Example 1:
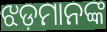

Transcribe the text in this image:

ଝଡ଼ମାନଙ୍କ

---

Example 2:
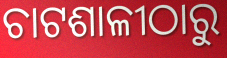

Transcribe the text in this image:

ଚାଟଶାଳୀଠାରୁ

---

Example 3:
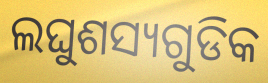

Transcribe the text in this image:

ଲଘୁଶସ୍ୟଗୁଡିକ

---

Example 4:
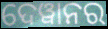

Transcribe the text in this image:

ଦେୱାନର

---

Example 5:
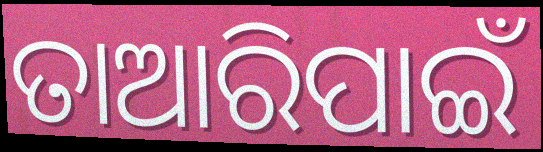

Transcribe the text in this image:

ତାଆରିପାଇଁ